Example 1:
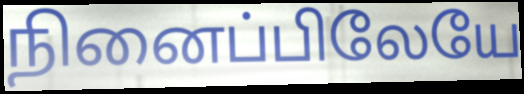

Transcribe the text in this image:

நினைப்பிலேயே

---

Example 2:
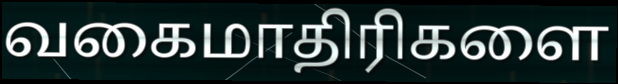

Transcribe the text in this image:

வகைமாதிரிகளை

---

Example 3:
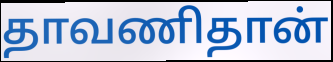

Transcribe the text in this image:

தாவணிதான்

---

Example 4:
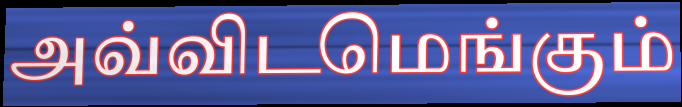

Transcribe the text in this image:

அவ்விடமெங்கும்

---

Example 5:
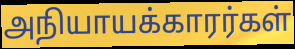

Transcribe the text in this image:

அநியாயக்காரர்கள்